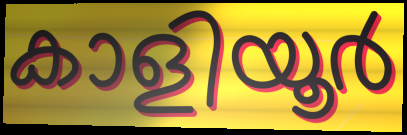
കാളിയൂർ